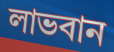
লাভবান